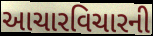
આચારવિચારની